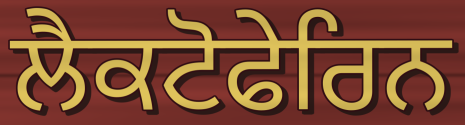
ਲੈਕਟੋਫੇਰਿਨ